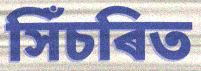
সিঁচৰিত